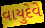
વાયુદેવે